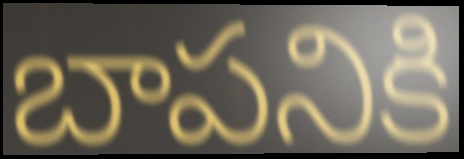
బాపనికి